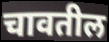
चावतील